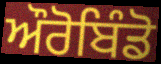
ਔਰੋਬਿੰਡੋ